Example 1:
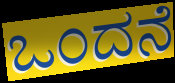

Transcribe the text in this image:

ಒಂದನೆ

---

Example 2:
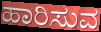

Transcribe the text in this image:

ಹಾರಿಸುವ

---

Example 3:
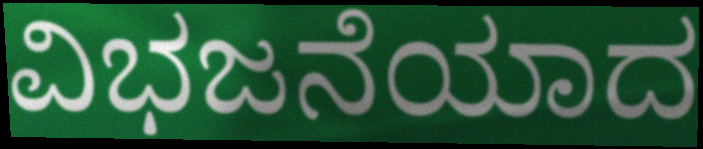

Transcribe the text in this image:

ವಿಭಜನೆಯಾದ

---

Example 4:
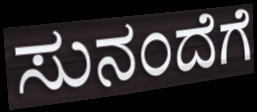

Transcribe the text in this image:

ಸುನಂದೆಗೆ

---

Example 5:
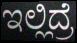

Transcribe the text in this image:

ಇಲ್ಲಿದ್ರೆ